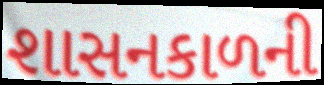
શાસનકાળની